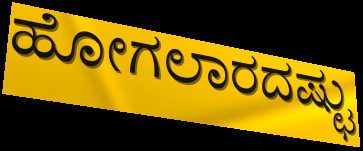
ಹೋಗಲಾರದಷ್ಟು